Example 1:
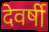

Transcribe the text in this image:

देवर्षी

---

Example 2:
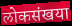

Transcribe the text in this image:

लोकसंखया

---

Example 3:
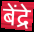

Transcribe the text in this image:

बेंद्रे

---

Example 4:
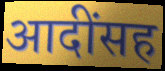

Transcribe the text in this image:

आदींसह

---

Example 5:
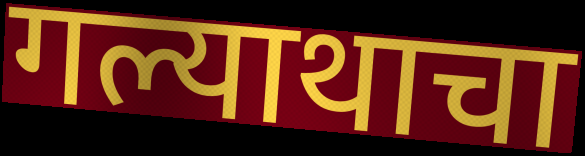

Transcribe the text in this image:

गल्याथाचा